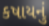
કષાયનું